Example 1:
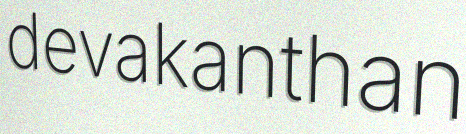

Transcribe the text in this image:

devakanthan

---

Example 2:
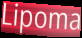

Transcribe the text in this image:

Lipoma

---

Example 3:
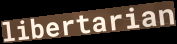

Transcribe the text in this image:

libertarian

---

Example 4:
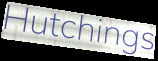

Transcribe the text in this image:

Hutchings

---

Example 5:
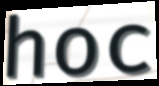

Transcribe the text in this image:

hoc